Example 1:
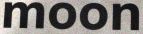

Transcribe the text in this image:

moon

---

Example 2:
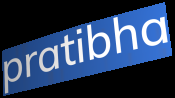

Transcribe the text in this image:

pratibha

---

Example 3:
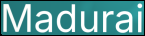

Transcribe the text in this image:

Madurai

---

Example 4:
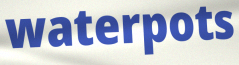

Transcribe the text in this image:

waterpots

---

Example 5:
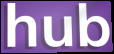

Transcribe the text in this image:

hub